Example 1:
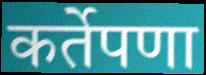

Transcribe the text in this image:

कर्तेपणा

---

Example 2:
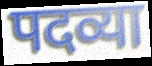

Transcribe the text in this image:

पदव्या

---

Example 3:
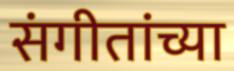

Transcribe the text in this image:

संगीतांच्या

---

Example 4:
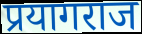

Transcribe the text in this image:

प्रयागराज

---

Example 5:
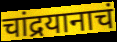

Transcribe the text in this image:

चांद्रयानाचं